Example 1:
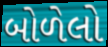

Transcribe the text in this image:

બોળેલો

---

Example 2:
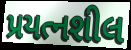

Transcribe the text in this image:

પ્રયત્નશીલ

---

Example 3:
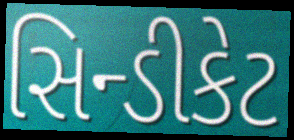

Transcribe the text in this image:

સિન્ડીકેટ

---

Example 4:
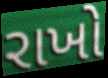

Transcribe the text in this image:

રાખો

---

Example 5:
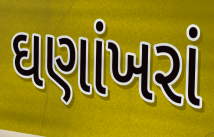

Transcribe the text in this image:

ઘણાંખરાં